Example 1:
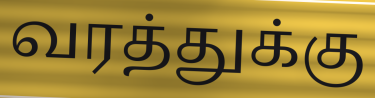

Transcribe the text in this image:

வரத்துக்கு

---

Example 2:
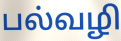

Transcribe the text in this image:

பல்வழி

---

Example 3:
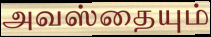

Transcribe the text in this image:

அவஸ்தையும்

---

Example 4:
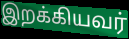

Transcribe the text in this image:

இறக்கியவர்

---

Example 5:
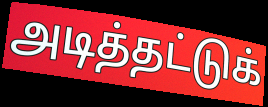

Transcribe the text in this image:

அடித்தட்டுக்